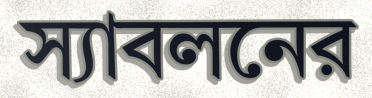
স্যাবলনের